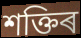
শক্তিৰ